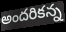
అందరికన్న